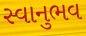
સ્વાનુભવ